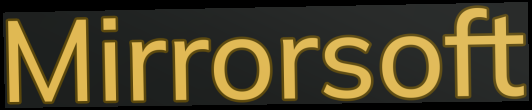
Mirrorsoft